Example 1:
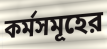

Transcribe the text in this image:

কর্মসমূহের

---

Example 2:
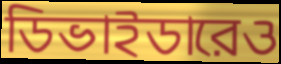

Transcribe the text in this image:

ডিভাইডারেও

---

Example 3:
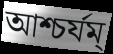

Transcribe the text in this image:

আশ্চর্যম্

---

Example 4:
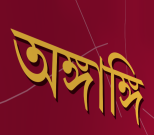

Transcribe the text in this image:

অঙ্গাঙ্গি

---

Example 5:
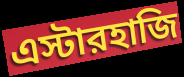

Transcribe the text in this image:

এস্টারহাজি